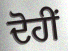
ਦੋਹੀਂ